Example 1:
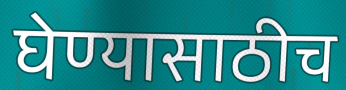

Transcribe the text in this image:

घेण्यासाठीच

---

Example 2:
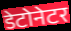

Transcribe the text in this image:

डेटोनेटर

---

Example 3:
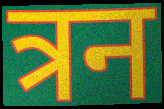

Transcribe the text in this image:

त्रन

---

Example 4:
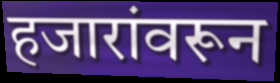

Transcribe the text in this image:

हजारांवरून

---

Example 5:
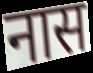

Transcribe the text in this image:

नास